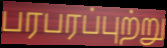
பரபரப்புற்று